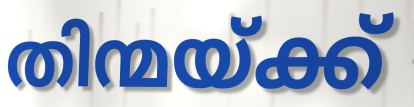
തിന്മയ്ക്ക്